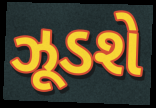
ઝૂડશે